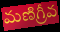
మణిగ్రీవ